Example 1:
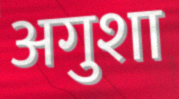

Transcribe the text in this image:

अगुशा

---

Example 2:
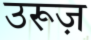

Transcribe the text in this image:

उरूज़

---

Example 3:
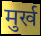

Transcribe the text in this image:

मुर्ख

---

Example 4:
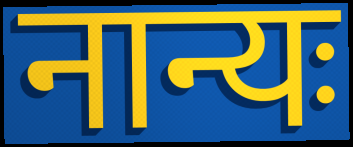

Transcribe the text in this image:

नान्यः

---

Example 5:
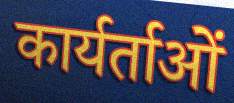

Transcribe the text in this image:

कार्यर्ताओं